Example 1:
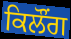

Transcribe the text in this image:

ਕਿਲੌਂਗ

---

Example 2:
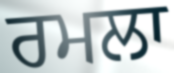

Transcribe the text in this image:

ਰਮਲਾ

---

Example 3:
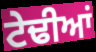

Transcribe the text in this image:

ਟੇਢੀਆਂ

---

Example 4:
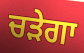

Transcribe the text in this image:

ਚੜੇਗਾ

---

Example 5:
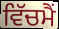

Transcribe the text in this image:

ਵਿੱਚਮੈਂ